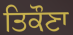
ਤਿਕੌਣਾ